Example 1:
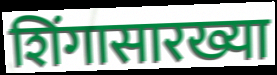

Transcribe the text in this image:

शिंगासारख्या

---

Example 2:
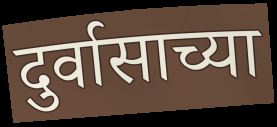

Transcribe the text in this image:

दुर्वासाच्या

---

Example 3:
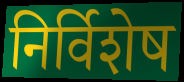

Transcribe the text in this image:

निर्विशेष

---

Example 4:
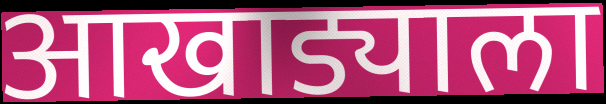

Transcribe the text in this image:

आखाड्याला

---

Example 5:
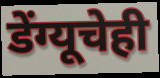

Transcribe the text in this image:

डेंग्यूचेही